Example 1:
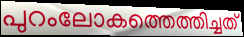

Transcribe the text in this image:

പുറംലോകത്തെത്തിച്ചത്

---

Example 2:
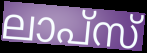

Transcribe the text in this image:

ലാപ്സ്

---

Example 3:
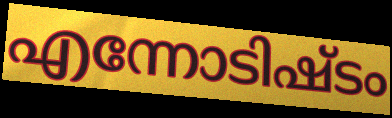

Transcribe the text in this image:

എന്നോടിഷ്ടം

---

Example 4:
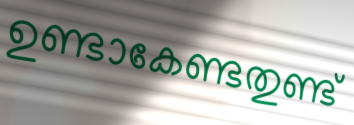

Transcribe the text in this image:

ഉണ്ടാകേണ്ടതുണ്ട്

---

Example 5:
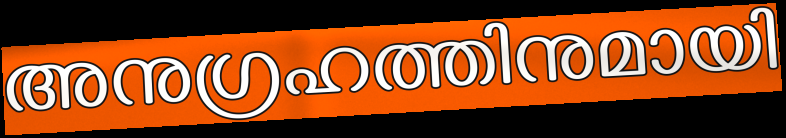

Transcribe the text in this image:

അനുഗ്രഹത്തിനുമായി